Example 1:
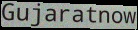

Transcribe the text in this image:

Gujaratnow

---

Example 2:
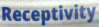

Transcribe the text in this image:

Receptivity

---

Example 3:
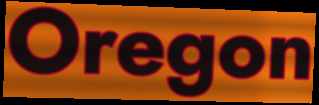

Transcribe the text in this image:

Oregon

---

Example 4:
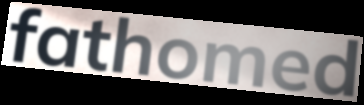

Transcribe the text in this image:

fathomed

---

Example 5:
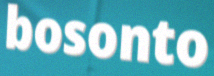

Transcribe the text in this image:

bosonto